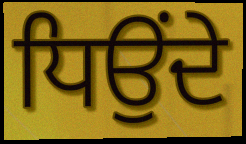
ਧਿਉਂਦੇ